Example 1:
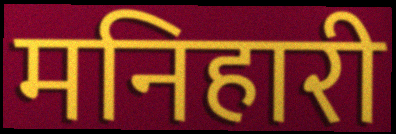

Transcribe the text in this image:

मनिहारी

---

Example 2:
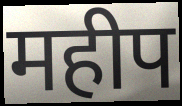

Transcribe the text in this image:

महीप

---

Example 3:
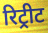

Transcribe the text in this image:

रिट्रीट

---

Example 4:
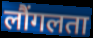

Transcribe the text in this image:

लौंगलता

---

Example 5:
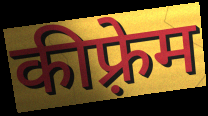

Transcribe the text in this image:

कीफ़्रेम